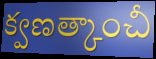
క్వణత్కాంచీ